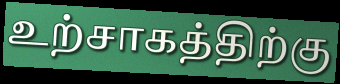
உற்சாகத்திற்கு